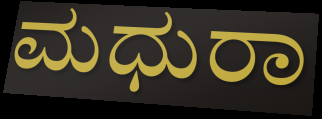
ಮಧುರಾ